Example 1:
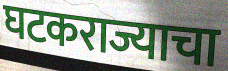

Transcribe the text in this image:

घटकराज्याचा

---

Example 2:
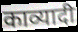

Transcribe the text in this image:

काव्यादी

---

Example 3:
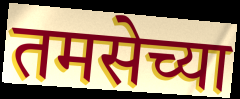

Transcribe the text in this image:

तमसेच्या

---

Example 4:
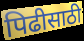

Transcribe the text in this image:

पिढीसाठी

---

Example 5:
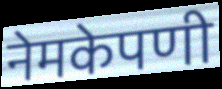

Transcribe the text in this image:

नेमकेपणी